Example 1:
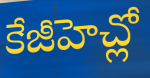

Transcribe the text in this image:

కేజీహెచ్లో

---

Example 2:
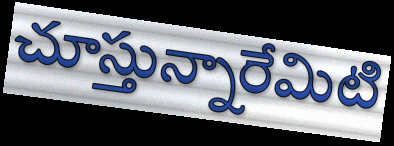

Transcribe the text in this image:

చూస్తున్నారేమిటి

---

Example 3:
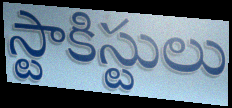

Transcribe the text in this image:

స్టాకిస్టులు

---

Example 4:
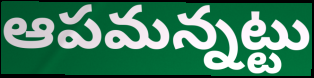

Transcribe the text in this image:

ఆపమన్నట్టు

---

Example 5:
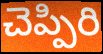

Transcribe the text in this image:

చెప్పిరి